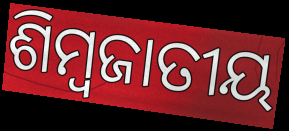
ଶିମ୍ବଜାତୀୟ